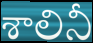
శాలినీ